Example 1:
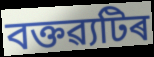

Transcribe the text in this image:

বক্তৱ্যটিৰ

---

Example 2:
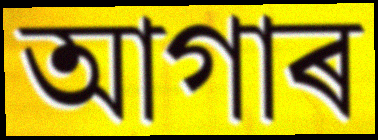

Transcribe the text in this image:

আগাৰ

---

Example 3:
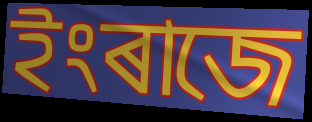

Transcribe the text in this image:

ইংৰাজে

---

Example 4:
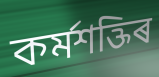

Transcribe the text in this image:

কৰ্মশক্তিৰ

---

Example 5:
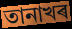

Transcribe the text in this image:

তানাখৰ